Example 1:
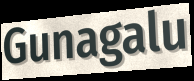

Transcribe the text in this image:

Gunagalu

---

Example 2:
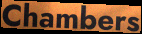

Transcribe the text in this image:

Chambers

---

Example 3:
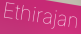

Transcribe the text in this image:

Ethirajan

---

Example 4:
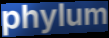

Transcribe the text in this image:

phylum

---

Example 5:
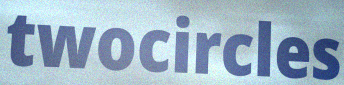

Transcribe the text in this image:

twocircles